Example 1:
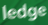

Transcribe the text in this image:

ledge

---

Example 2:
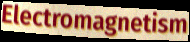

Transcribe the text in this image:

Electromagnetism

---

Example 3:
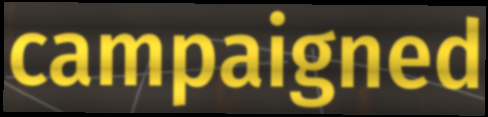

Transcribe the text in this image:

campaigned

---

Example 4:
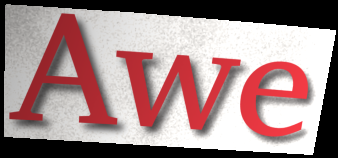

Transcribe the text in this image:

Awe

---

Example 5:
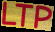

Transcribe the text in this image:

LTP